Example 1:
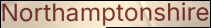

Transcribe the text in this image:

Northamptonshire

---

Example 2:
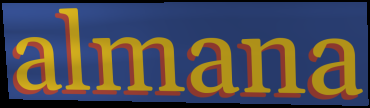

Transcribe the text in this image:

almana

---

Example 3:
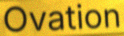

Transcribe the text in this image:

Ovation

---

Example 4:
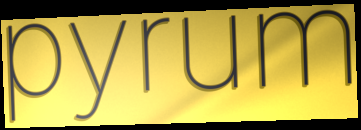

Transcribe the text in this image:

pyrum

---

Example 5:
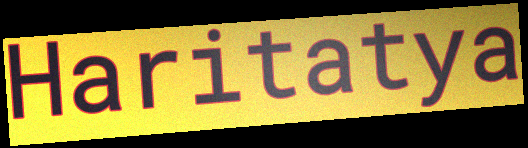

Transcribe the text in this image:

Haritatya